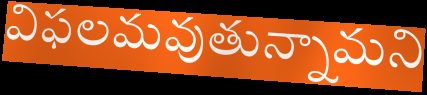
విఫలమవుతున్నామని